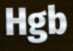
Hgb